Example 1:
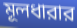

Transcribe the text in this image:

মূলধারার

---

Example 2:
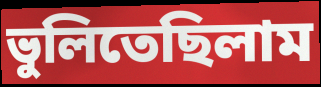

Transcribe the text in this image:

ভুলিতেছিলাম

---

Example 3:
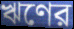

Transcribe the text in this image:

ঋণের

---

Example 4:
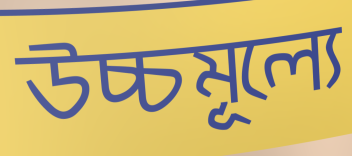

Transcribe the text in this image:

উচ্চমূল্যে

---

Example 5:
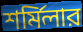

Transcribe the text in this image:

শর্মিলার